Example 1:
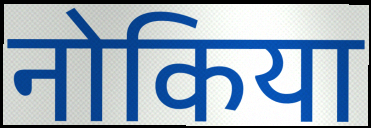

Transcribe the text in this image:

नोकिया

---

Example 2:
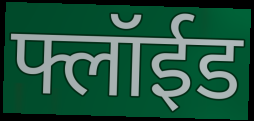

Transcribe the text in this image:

फ्लॉईड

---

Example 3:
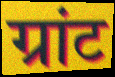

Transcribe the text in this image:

ग्रांट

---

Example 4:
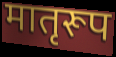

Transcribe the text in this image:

मातृरूप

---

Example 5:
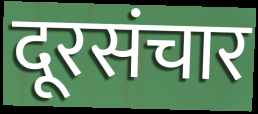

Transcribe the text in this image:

दूरसंचार